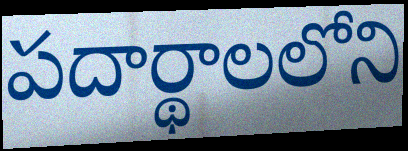
పదార్థాలలోని